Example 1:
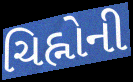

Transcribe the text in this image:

ચિહ્નોની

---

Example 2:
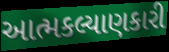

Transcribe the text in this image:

આત્મકલ્યાણકારી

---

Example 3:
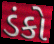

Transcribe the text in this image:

ડંકો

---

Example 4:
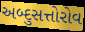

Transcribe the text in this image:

અબ્દુસત્તોરોવ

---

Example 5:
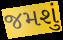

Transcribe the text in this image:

જમશું